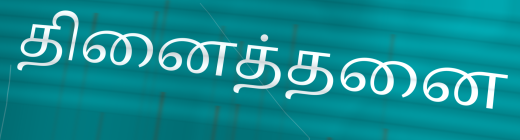
தினைத்தனை